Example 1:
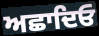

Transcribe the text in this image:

ਅਛਾਦਿਓ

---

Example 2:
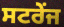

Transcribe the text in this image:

ਸਟਰੇਂਜ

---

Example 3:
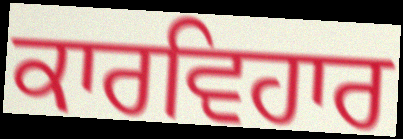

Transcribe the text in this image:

ਕਾਰਵਿਹਾਰ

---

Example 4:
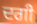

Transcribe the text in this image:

ਦਗੀ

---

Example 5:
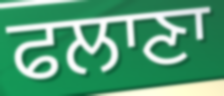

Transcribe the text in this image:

ਫਲਾਣਾ